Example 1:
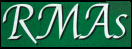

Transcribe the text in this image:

RMAs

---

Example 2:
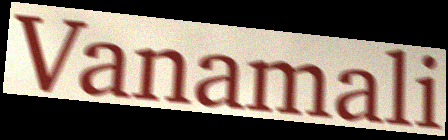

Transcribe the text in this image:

Vanamali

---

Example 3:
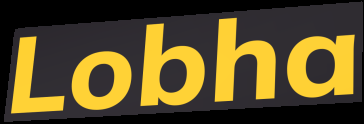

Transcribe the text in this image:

Lobha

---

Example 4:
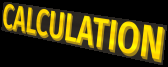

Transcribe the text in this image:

CALCULATION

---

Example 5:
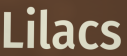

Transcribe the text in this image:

Lilacs